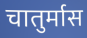
चातुर्मास